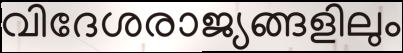
വിദേശരാജ്യങ്ങളിലും